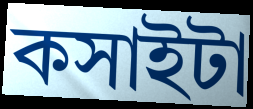
কসাইটা